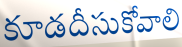
కూడదీసుకోవాలి